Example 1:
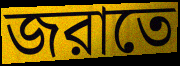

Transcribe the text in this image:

জরাতে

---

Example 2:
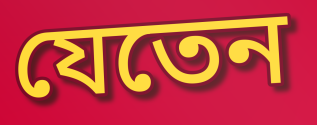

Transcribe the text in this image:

যেতেন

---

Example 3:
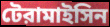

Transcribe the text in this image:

টেরামাইসিন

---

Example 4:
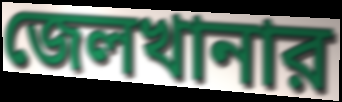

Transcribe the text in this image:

জেলখানার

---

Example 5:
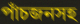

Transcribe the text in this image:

পাঁচজনসহ